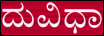
ದುವಿಧಾ